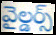
వైల్డర్స్